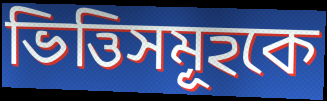
ভিত্তিসমূহকে